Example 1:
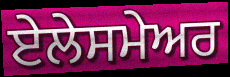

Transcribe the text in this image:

ਏਲੇਸਮੇਅਰ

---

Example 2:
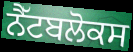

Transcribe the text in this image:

ਨੈੱਟਬਲੋਕਸ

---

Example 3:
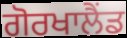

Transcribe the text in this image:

ਗੋਰਖਾਲੈਂਡ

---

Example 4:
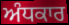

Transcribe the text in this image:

ਅੰਧਕਾਰ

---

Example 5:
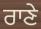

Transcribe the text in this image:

ਰਾਣੇ